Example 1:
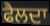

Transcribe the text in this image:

ਫੈਲਦਾ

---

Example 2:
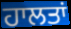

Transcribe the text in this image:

ਹਾਲਤਾਂ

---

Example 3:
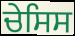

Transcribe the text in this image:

ਚੇਸਿਸ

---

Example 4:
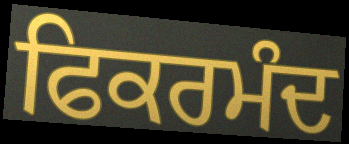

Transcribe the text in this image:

ਫਿਕਰਮੰਦ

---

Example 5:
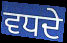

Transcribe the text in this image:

ਵਧਦੇ